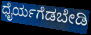
ಧೈರ್ಯಗೆಡಬೇಡಿ